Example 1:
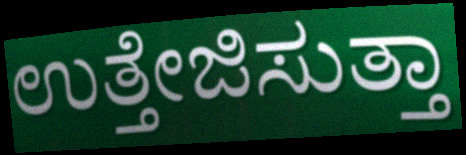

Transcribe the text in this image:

ಉತ್ತೇಜಿಸುತ್ತಾ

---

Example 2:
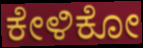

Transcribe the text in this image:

ಕೇಳಿಕೋ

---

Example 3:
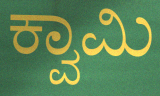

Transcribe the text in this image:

ಕ್ವಾಮಿ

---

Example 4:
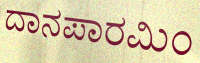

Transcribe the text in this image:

ದಾನಪಾರಮಿಂ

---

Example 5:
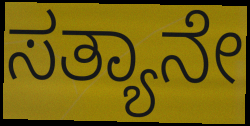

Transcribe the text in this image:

ಸತ್ಯಾನೇ